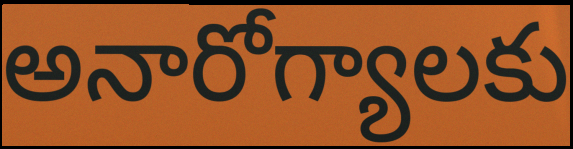
అనారోగ్యాలకు